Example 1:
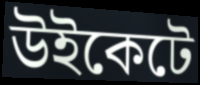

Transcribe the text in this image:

উইকেটে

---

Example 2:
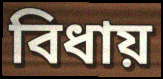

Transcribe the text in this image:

বিধায়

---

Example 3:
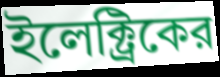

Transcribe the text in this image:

ইলেক্ট্রিকের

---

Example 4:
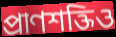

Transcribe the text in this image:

প্রাণশক্তিও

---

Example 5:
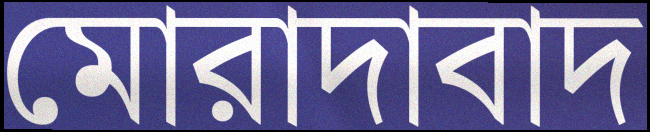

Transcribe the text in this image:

মোরাদাবাদ